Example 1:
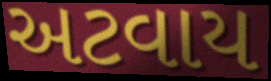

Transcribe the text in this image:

અટવાય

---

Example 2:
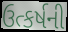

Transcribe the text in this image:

ઉત્કર્ષની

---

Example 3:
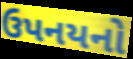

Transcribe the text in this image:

ઉપનયનો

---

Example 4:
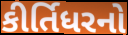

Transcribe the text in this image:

કીર્તિધરનો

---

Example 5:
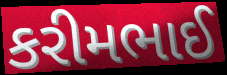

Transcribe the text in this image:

કરીમભાઈ